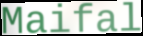
Maifal